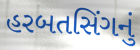
હરબતસિંગનું